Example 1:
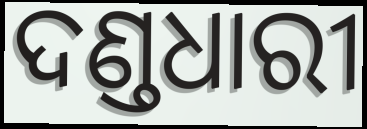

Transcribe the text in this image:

ଦଣ୍ଡଧାରୀ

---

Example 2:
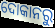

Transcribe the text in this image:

ଦୋକାନରୁ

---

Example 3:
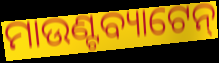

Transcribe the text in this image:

ମାଉଣ୍ଟବ୍ୟାଟେନ୍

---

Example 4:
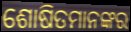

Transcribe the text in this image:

ଶୋଷିତମାନଙ୍କର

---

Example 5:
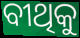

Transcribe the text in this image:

ବୀଥିକୁ